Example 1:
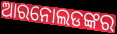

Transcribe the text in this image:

ଆରନୋଲଡଙ୍କର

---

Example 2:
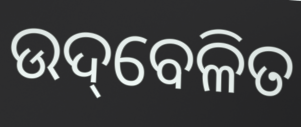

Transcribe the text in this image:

ଉଦ୍‌ବେଳିତ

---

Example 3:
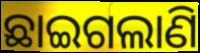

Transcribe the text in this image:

ଛାଇଗଲାଣି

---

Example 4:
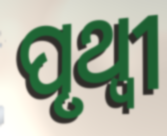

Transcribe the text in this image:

ପୃଥ୍ଵୀ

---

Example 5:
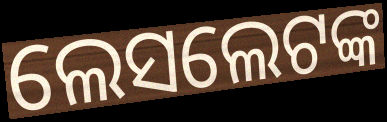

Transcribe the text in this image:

ଲେସଲେଟଙ୍କ